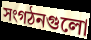
সংগঠনগুলো